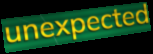
unexpected